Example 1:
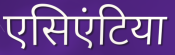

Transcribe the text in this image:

एसिएंटिया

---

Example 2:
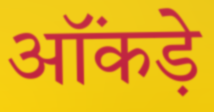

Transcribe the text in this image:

ऑंकड़े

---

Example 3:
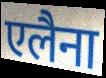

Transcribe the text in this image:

एलैना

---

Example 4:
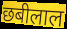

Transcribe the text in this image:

छबीलाल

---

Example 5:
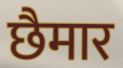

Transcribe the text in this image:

छैमार